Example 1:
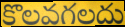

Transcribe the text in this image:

కొలవగలదు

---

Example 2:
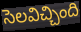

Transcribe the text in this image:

సెలవిచ్చింది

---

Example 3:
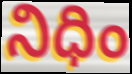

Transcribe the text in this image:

నిధిం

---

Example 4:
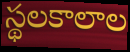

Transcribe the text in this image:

స్థలకాలాల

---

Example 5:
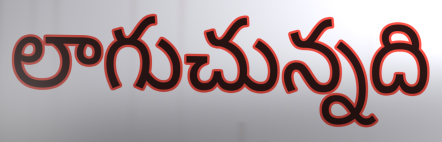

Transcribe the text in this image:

లాగుచున్నది